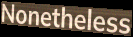
Nonetheless